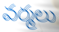
వర్మలు